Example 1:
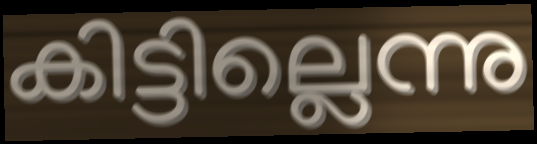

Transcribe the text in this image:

കിട്ടില്ലെന്നു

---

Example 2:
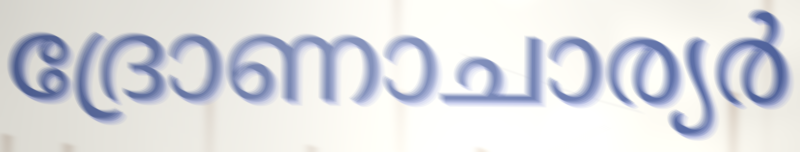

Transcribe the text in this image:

ദ്രോണാചാര്യർ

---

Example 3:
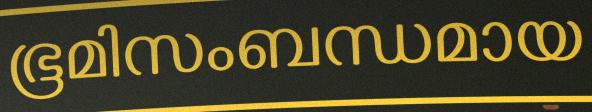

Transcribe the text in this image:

ഭൂമിസംബന്ധമായ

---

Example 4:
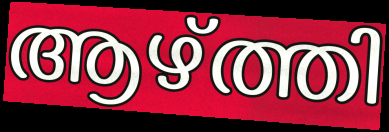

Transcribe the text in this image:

ആഴ്ത്തി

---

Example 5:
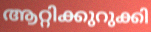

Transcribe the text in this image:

ആറ്റിക്കുറുക്കി